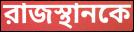
রাজস্থানকে